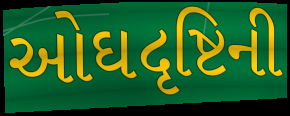
ઓઘદૃષ્ટિની